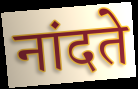
नांदते